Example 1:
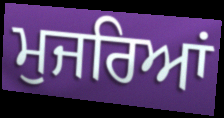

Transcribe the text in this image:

ਮੁਜਰਿਆਂ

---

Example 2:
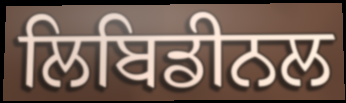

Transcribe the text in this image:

ਲਿਬਿਡੀਨਲ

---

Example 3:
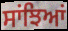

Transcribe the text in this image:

ਸਾਂਝਿਆਂ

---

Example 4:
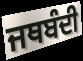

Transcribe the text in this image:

ਜਥਬੰਦੀ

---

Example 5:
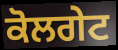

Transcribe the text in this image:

ਕੋਲਗੇਟ